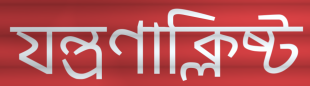
যন্ত্রণাক্লিষ্ট